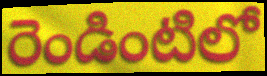
రెండింటిలో